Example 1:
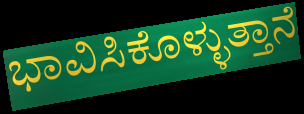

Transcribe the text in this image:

ಭಾವಿಸಿಕೊಳ್ಳುತ್ತಾನೆ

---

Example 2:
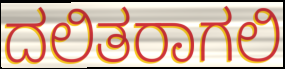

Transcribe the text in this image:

ದಲಿತರಾಗಲಿ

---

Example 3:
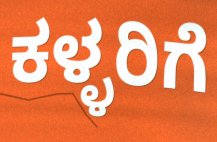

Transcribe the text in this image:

ಕಳ್ಳರಿಗೆ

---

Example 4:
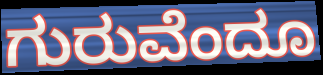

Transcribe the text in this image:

ಗುರುವೆಂದೂ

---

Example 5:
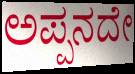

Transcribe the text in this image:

ಅಪ್ಪನದೇ